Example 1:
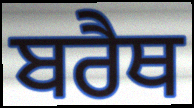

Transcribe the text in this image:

ਬਰੈਥ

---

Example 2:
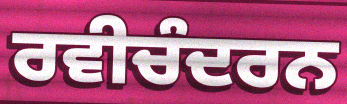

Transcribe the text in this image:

ਰਵੀਚੰਦਰਨ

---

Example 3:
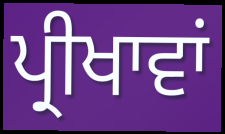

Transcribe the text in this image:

ਪ੍ਰੀਖਾਵਾਂ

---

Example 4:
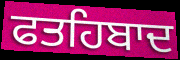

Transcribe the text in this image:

ਫਤਹਿਬਾਦ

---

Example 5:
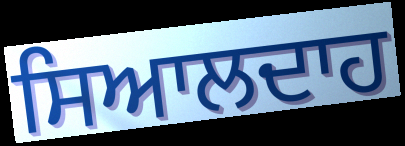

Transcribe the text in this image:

ਸਿਆਲਦਾਹ